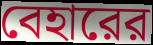
বেহারের